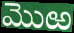
మొఱ